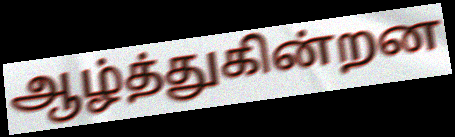
ஆழ்த்துகின்றன